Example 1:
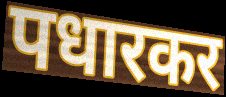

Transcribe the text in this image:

पधारकर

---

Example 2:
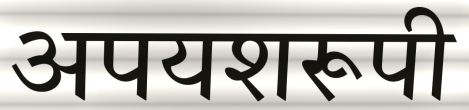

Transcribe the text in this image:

अपयशरूपी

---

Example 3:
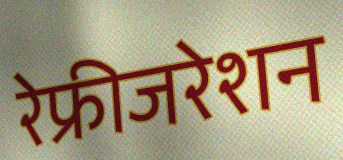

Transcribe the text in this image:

रेफ्रीजरेशन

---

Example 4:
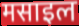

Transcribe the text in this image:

मसाइल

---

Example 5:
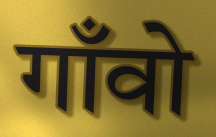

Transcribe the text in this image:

गाँवो